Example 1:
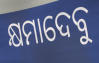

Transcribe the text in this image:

କ୍ଷମାଦେବୁ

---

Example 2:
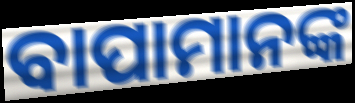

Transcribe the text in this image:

ବାପାମାନଙ୍କ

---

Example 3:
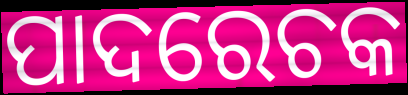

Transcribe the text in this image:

ପାଦରେଚକ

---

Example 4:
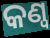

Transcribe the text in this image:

କଣ୍ୱ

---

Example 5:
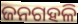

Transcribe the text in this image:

ଜନଗହଳି